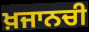
ਖ਼ਜਾਨਚੀ